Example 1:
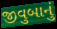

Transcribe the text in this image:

જીવુબાનું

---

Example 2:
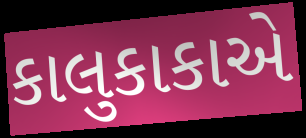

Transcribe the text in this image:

કાલુકાકાએ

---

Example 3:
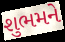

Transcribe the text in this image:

શુભમને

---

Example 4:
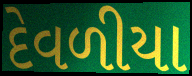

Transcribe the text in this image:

દેવળીયા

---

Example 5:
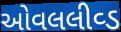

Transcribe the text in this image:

ઓવલલીવ્ડ